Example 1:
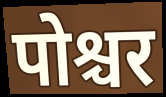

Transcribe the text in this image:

पोश्चर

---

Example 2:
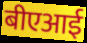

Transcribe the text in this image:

बीएआई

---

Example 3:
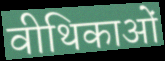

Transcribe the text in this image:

वीथिकाओं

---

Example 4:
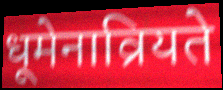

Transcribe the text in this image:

धूमेनाव्रियते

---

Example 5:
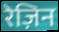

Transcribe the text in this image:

रेज़िन